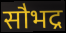
सौभद्र